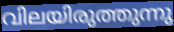
വിലയിരുത്തുന്നു